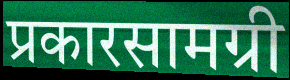
प्रकारसामग्री